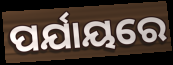
ପର୍ଯାୟରେ